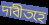
দাবীতহে